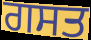
ਗਸਤ